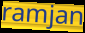
ramjan